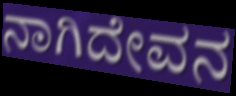
ನಾಗಿದೇವನ